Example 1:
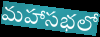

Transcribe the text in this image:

మహాసభలో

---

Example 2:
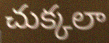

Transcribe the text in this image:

చుక్కలా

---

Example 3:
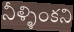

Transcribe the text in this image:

నీళ్ళింకని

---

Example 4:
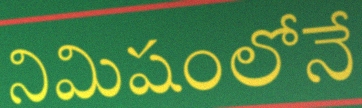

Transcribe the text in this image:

నిమిషంలోనే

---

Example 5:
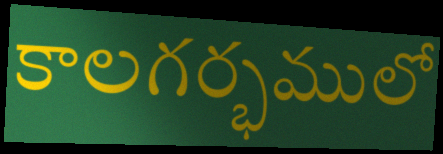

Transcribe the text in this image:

కాలగర్భములో